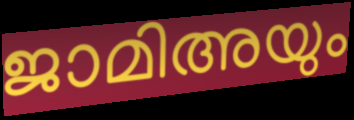
ജാമിഅയും